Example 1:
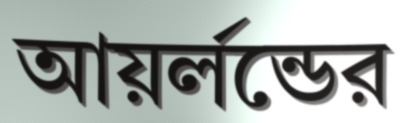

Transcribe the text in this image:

আয়র্লন্ডের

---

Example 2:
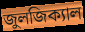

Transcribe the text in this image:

জুলজিক্যাল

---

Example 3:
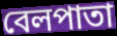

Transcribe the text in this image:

বেলপাতা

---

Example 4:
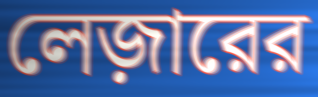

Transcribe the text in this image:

লেজ়ারের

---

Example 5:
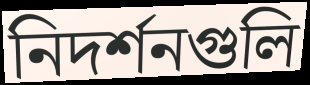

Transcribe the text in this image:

নিদর্শনগুলি